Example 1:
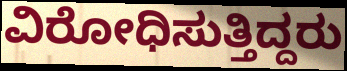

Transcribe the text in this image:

ವಿರೋಧಿಸುತ್ತಿದ್ದರು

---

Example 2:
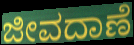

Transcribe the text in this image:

ಜೀವದಾಣೆ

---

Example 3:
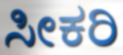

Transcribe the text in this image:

ಸೀಕರಿ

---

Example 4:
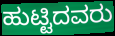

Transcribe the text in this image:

ಹುಟ್ಟಿದವರು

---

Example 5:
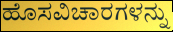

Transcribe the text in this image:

ಹೊಸವಿಚಾರಗಳನ್ನು